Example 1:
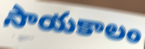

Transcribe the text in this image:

సాయకాలం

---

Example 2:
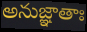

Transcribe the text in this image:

అనుజ్ఞాతాః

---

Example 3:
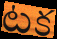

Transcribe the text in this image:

టక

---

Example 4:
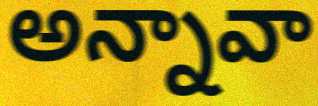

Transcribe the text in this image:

అన్నావా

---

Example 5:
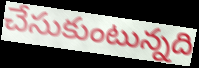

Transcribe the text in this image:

చేసుకుంటున్నది